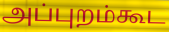
அப்புறம்கூட